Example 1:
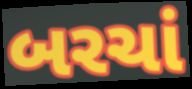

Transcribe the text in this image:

બરચાં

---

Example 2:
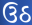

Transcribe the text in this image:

ઉઠ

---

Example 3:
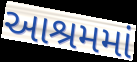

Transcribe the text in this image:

આશ્રમમાં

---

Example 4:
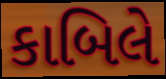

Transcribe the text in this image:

કાબિલે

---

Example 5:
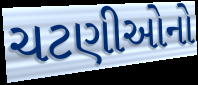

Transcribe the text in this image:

ચટણીઓનો